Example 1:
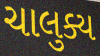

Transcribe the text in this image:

ચાલુક્ય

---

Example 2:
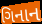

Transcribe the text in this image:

ગિનાન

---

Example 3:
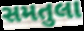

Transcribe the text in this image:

સમતુલા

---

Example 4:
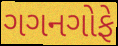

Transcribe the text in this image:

ગગનગોફે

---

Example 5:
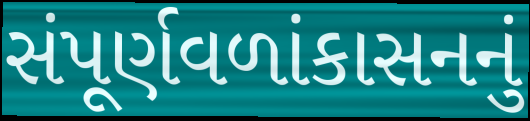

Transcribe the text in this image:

સંપૂર્ણવળાંકાસનનું